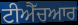
ਟੀਐੱਚਆਰ